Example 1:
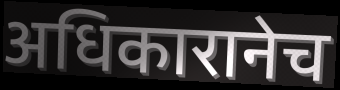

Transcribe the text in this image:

अधिकारानेच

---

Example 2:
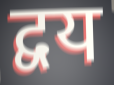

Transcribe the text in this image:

द्वय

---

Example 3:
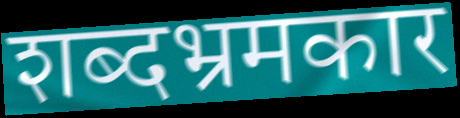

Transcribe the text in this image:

शब्दभ्रमकार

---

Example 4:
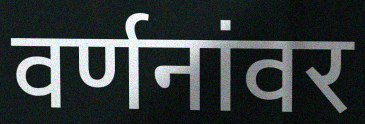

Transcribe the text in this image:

वर्णनांवर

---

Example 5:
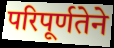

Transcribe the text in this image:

परिपूर्णतेने